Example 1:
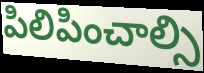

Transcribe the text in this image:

పిలిపించాల్సి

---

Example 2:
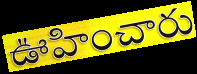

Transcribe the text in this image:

ఊహించారు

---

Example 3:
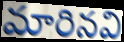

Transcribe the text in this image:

మారినవి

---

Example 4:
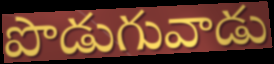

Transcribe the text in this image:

పొడుగువాడు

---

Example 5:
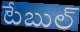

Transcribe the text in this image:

టేబుల్